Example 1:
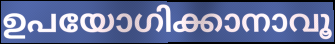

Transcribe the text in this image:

ഉപയോഗിക്കാനാവൂ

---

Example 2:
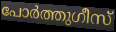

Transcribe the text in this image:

പോർത്തുഗീസ്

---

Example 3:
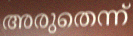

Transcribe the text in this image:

അരുതെന്ന്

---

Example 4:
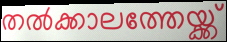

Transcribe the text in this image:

തൽക്കാലത്തേയ്ക്ക്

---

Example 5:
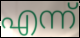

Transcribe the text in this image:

എന്ന്